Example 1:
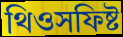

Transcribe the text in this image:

থিওসফিষ্ট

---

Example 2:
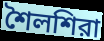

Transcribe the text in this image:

শৈলশিরা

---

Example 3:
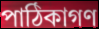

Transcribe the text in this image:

পাঠিকাগণ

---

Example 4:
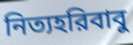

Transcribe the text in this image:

নিত্যহরিবাবু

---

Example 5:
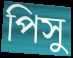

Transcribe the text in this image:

পিসু